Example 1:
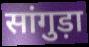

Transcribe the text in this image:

सांगुड़ा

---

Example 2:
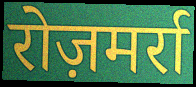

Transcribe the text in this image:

रोज़मर्रा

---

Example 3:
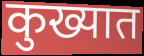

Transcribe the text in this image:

कुख्यात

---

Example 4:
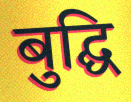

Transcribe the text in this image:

बुद्घि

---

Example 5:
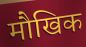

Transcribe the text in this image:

मौखिक